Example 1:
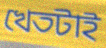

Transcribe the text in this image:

খেতটাই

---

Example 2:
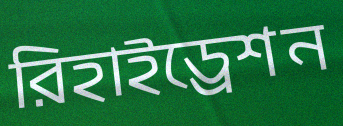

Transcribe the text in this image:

রিহাইড্রেশন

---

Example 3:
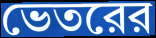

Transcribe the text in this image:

ভেতরের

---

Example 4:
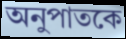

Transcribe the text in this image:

অনুপাতকে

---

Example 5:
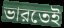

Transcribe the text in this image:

ভারতেই